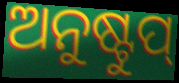
ଅନୁଷ୍ଟୁପ୍